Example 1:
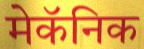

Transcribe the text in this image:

मेकॅनिक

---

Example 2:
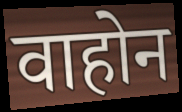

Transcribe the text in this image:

वाहोन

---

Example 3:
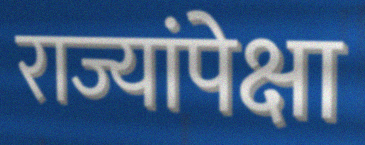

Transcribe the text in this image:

राज्यांपेक्षा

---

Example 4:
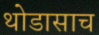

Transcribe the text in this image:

थोडासाच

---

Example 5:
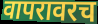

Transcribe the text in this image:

वापरावरच